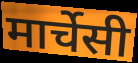
मार्चेसी